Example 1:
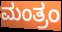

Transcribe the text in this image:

ಮಂತ್ರಂ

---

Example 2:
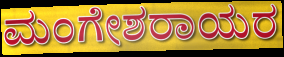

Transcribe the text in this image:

ಮಂಗೇಶರಾಯರ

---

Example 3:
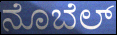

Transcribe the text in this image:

ನೊಬೆಲ್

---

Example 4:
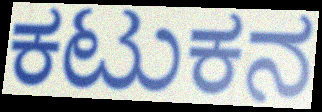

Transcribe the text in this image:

ಕಟುಕನ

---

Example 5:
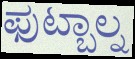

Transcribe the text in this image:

ಫುಟ್ಬಾಲ್ನ